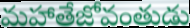
మహాతేజోవంతుడు